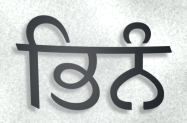
ਭਿਨੰ